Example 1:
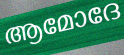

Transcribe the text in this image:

ആമോദേ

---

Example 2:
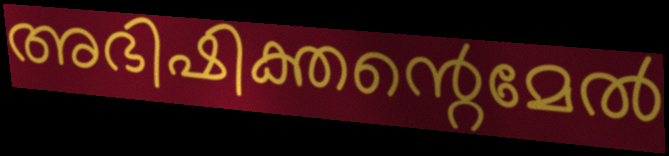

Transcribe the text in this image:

അഭിഷിക്തന്റെമേൽ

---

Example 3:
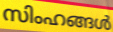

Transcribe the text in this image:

സിംഹങ്ങൾ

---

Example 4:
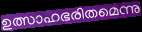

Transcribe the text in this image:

ഉത്സാഹഭരിതമെന്നു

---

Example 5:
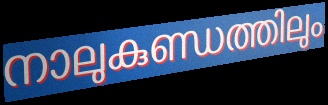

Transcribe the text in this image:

നാലുകുണ്ഡത്തിലും